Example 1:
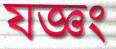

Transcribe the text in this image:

যজ্ঞং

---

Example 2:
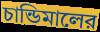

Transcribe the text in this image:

চান্ডিমালের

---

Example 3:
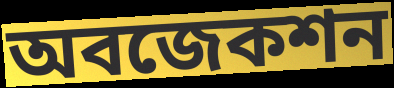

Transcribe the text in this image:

অবজেকশন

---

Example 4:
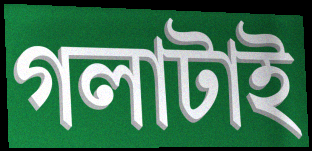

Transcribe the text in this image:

গলাটাই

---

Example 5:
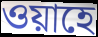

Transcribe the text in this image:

ওয়াহে